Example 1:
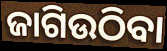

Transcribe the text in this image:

ଜାଗିଉଠିବା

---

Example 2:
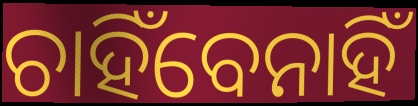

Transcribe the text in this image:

ଚାହିଁବେନାହିଁ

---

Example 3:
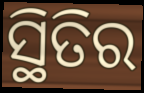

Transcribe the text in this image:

ସ୍ଥିତିର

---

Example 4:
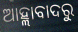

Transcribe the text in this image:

ଆହ୍ଲାବାଦରୁ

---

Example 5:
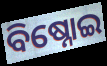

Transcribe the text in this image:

ବିଷ୍ନୋଇ